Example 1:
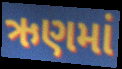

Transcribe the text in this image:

ઋણમાં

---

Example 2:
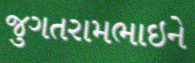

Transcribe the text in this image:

જુગતરામભાઇને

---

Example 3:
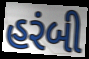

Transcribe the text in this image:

હરંબી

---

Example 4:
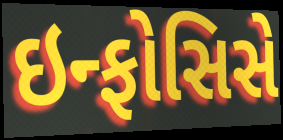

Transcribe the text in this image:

ઇન્ફોસિસે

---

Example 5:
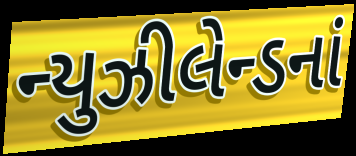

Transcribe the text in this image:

ન્યુઝીલેન્ડનાં